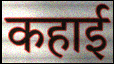
कहाई